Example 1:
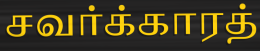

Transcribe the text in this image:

சவர்க்காரத்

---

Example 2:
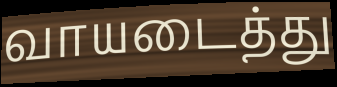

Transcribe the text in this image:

வாயடைத்து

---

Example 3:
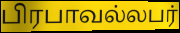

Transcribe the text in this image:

பிரபாவல்லபர்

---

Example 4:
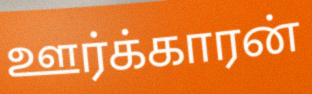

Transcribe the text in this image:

ஊர்க்காரன்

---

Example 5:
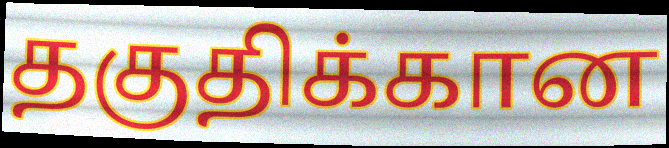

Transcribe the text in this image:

தகுதிக்கான